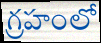
గ్రహంలో